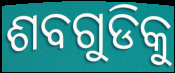
ଶବଗୁଡିକୁ